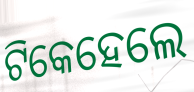
ଟିକେହେଲେ